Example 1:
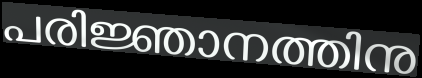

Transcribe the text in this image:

പരിജ്ഞാനത്തിനു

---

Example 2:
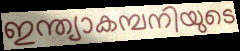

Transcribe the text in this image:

ഇന്ത്യാകമ്പനിയുടെ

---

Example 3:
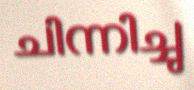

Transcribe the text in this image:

ചിന്നിച്ചു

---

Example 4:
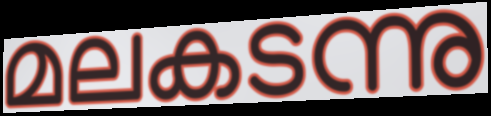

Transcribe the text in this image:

മലകടന്നു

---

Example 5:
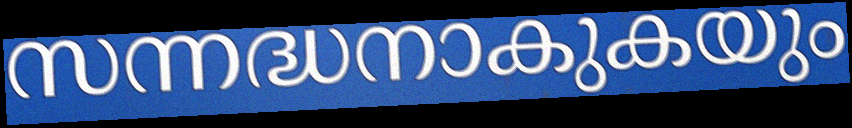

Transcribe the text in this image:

സന്നദ്ധനാകുകയും